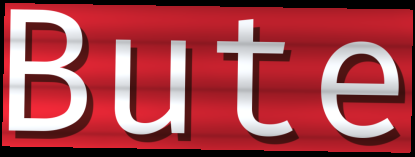
Bute